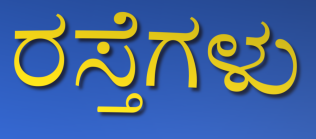
ರಸ್ತೆಗಳು